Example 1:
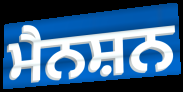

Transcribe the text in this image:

ਮੈਨਸ਼ਨ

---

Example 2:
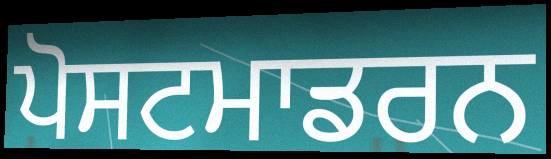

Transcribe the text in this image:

ਪੋਸਟਮਾਡਰਨ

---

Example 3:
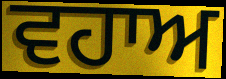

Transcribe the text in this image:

ਵਹਾਅ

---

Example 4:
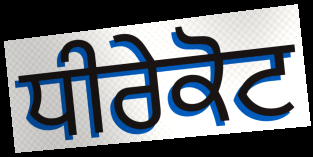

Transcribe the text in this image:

ਧੀਰੇਕੋਟ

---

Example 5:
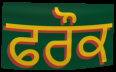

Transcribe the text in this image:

ਫਰੌਕ